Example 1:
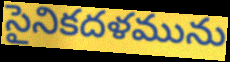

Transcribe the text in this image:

సైనికదళమును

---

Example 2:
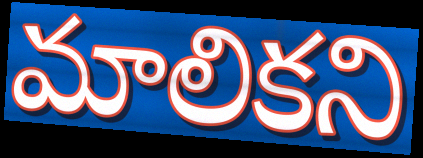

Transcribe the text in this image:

మాలికని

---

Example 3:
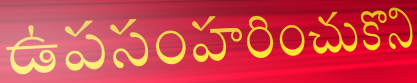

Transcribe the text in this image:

ఉపసంహరించుకొని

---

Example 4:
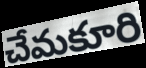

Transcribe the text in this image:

చేమకూరి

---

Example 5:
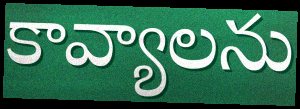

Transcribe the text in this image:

కావ్యాలను